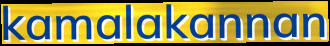
kamalakannan